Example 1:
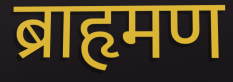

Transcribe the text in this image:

ब्राहृमण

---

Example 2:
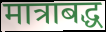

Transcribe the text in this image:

मात्राबद्ध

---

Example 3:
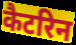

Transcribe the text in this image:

कैटरिन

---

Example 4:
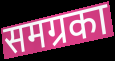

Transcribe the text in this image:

समग्रका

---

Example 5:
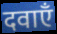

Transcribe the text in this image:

दवाएँ